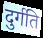
दुर्गति